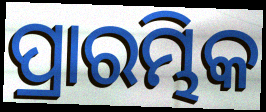
ପ୍ରାରମ୍ଭିକ